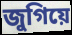
জুগিয়ে